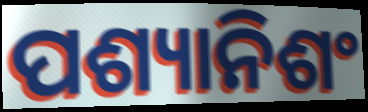
ପଶ୍ୟାନିଶଂ